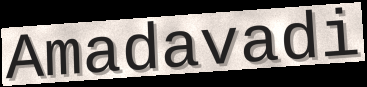
Amadavadi